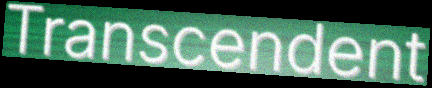
Transcendent